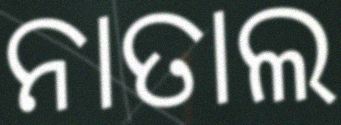
ନାତାଲ